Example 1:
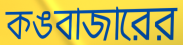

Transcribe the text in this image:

কঙবাজারের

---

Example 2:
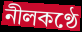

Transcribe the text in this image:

নীলকণ্ঠে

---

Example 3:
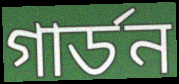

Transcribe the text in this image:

গার্ডন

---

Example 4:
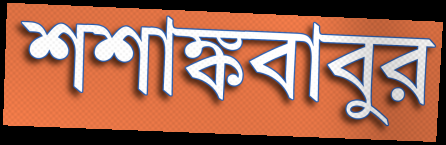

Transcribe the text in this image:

শশাঙ্কবাবুর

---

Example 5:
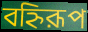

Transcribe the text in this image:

বহ্নিরূপ